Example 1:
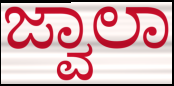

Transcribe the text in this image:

ಜ್ವಾಲಾ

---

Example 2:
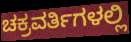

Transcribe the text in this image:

ಚಕ್ರವರ್ತಿಗಳಲ್ಲಿ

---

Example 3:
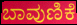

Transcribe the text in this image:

ಬಾವುಣಿಕೆ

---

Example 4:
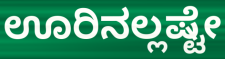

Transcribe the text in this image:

ಊರಿನಲ್ಲಷ್ಟೇ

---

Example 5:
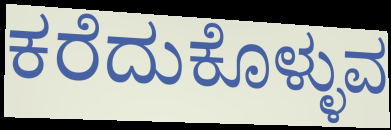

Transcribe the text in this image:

ಕರೆದುಕೊಳ್ಳುವ